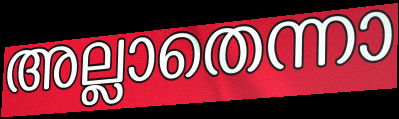
അല്ലാതെന്നാ